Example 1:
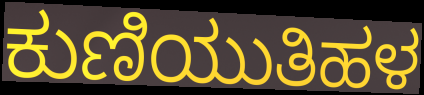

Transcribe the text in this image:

ಕುಣಿಯುತಿಹಳ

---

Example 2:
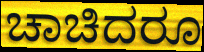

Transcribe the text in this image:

ಚಾಚಿದರೂ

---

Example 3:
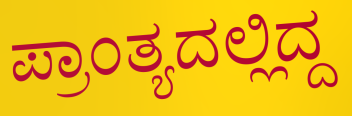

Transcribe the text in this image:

ಪ್ರಾಂತ್ಯದಲ್ಲಿದ್ದ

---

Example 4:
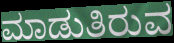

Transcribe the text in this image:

ಮಾಡುತಿರುವ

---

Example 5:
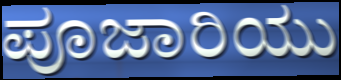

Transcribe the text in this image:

ಪೂಜಾರಿಯು